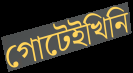
গোটেইখিনি